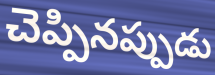
చెప్పినప్పుడు